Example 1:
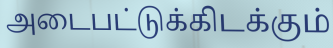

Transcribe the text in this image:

அடைபட்டுக்கிடக்கும்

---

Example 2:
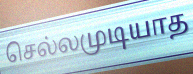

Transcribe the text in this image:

செல்லமுடியாத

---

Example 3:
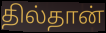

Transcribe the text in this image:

தில்தான்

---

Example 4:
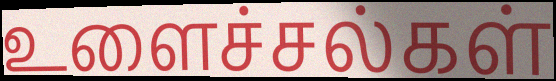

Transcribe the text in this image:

உளைச்சல்கள்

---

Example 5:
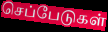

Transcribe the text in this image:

செப்பேடுகள்